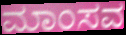
ಮಾಂಸವ